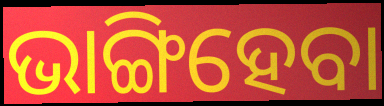
ଭାଙ୍ଗିହେବା